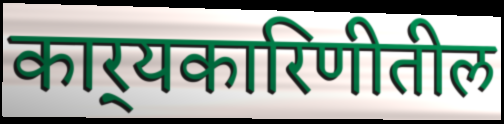
कार्यकारिणीतील